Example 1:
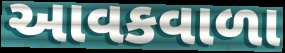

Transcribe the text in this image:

આવકવાળા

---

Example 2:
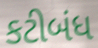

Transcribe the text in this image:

કટીબંધ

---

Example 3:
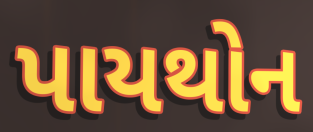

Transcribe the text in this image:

પાયથોન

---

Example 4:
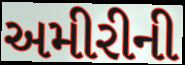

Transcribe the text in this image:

અમીરીની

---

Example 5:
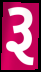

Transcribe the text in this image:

રૂ